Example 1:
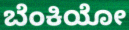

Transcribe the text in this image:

ಬೆಂಕಿಯೋ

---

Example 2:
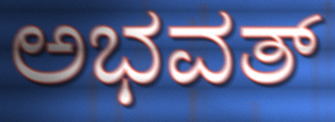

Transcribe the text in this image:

ಅಭವತ್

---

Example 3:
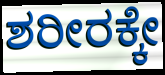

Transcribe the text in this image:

ಶರೀರಕ್ಕೇ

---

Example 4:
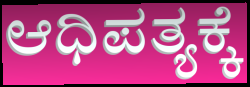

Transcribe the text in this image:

ಆಧಿಪತ್ಯಕ್ಕೆ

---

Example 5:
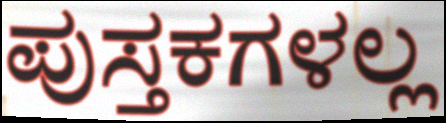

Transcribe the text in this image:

ಪುಸ್ತಕಗಳಲ್ಲ